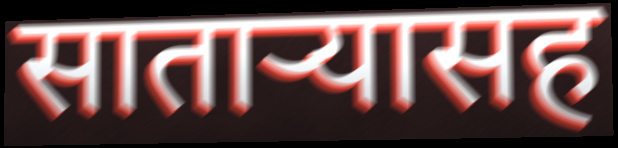
साताऱ्यासह